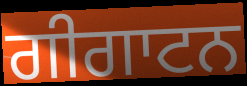
ਗੀਗਾਟਨ